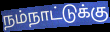
நம்நாட்டுக்கு